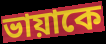
ভায়াকে